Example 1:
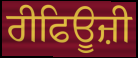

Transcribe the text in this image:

ਰੀਫਿਊਜ਼ੀ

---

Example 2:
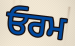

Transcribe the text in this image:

ਓਰਮ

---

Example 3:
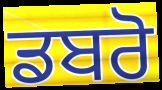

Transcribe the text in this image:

ਡਬਰੋ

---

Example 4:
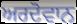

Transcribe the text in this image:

ਅਰਦੋਵਾਨ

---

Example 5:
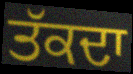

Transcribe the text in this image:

ਤੱਕਦਾ